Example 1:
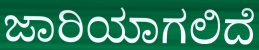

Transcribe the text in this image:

ಜಾರಿಯಾಗಲಿದೆ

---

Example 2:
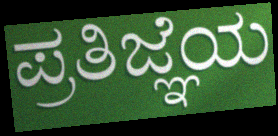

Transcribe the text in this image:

ಪ್ರತಿಜ್ಞೆಯ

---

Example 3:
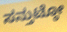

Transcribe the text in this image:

ಸನ್ತುಟ್ಠೋ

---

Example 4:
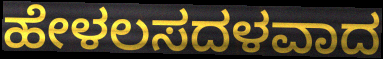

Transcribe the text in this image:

ಹೇಳಲಸದಳವಾದ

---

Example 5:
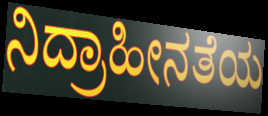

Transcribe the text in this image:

ನಿದ್ರಾಹೀನತೆಯ